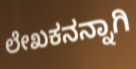
ಲೇಖಕನನ್ನಾಗಿ